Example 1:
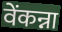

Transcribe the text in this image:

वेंकन्ना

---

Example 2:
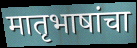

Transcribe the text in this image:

मातृभाषांचा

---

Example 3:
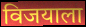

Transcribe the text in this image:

विजयाला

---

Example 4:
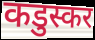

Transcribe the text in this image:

कडुस्कर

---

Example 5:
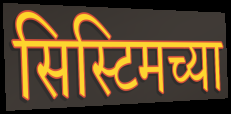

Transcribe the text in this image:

सिस्टिमच्या